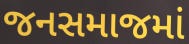
જનસમાજમાં